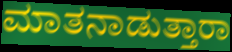
ಮಾತನಾಡುತ್ತಾರಾ